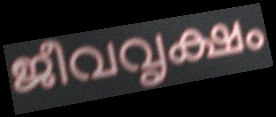
ജീവവൃക്ഷം